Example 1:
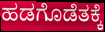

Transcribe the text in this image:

ಹಡಗೊಡೆತಕ್ಕೆ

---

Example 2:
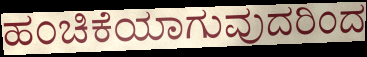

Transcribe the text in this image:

ಹಂಚಿಕೆಯಾಗುವುದರಿಂದ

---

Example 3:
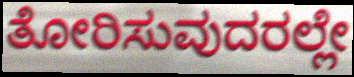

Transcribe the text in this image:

ತೋರಿಸುವುದರಲ್ಲೇ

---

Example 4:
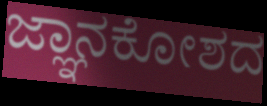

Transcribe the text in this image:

ಜ್ಞಾನಕೋಶದ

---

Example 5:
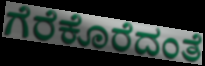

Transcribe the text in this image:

ಗೆರೆಕೊರೆದಂತೆ